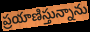
ప్రయాణిస్తున్నాను